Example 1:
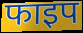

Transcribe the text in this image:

फाइप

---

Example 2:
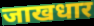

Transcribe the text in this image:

जाखधार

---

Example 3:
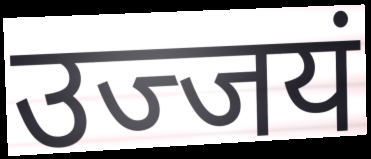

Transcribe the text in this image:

उज्जयं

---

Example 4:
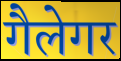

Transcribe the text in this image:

गैलेगर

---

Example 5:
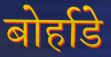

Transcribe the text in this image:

बोर्हाडे